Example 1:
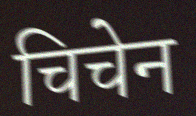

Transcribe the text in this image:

चिचेन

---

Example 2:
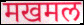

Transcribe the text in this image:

मखमल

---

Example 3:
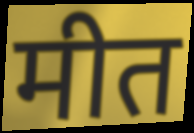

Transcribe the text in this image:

मीत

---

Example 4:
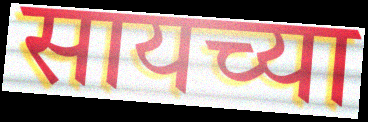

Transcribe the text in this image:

सायच्या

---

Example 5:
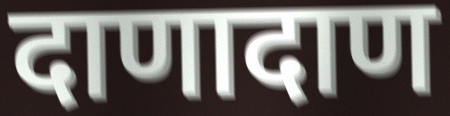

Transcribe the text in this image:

दाणादाण